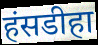
हंसडीहा